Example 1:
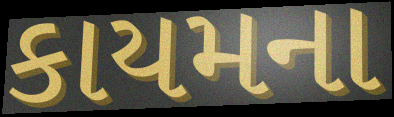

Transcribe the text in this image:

કાયમના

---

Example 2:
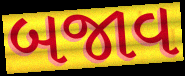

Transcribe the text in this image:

બજાવ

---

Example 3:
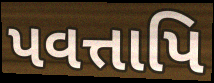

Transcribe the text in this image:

પવત્તાપિ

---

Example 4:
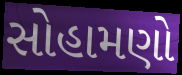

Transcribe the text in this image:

સોહામણો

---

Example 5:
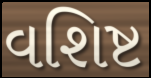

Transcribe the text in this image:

વશિષ્ટ